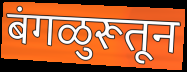
बंगळुरूतून